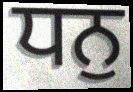
ਧਨੁ